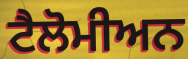
ਟੈਲੋਮੀਅਨ